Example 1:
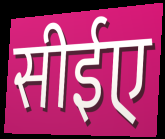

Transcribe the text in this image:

सीईए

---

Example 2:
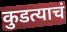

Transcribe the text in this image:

कुडत्याचं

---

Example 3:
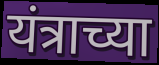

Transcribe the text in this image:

यंत्राच्या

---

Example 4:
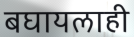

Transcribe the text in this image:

बघायलाही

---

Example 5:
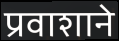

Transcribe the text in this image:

प्रवाशाने